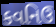
કવનિઉ